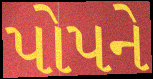
પોપને